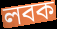
লবক